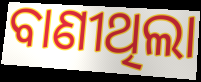
ବାଣୀଥିଲା